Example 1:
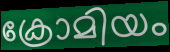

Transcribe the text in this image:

ക്രോമിയം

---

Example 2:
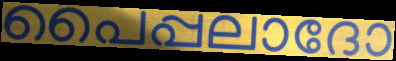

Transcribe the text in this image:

പൈപ്പലാദോ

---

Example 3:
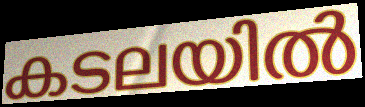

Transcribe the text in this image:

കടലയിൽ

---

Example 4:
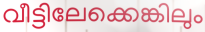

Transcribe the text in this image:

വീട്ടിലേക്കെങ്കിലും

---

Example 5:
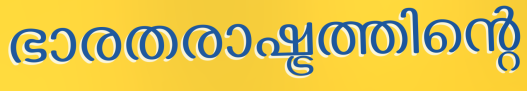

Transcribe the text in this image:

ഭാരതരാഷ്ട്രത്തിന്റെ